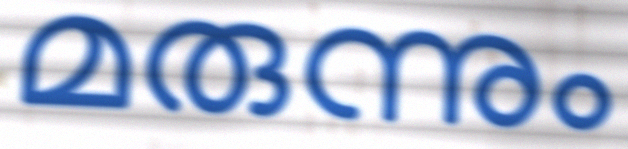
മരുന്നും